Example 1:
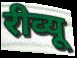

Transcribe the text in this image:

रीव्यू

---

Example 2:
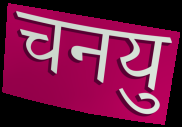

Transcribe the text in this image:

चनयु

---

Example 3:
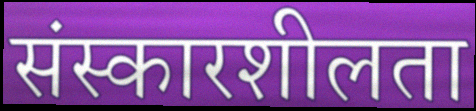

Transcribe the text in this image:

संस्कारशीलता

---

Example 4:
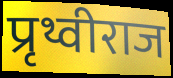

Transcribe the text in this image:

प्रृथ्वीराज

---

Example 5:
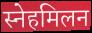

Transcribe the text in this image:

स्नेहमिलन